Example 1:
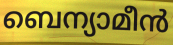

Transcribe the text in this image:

ബെന്യാമീൻ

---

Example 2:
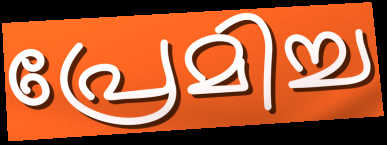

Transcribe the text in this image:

പ്രേമിച്ച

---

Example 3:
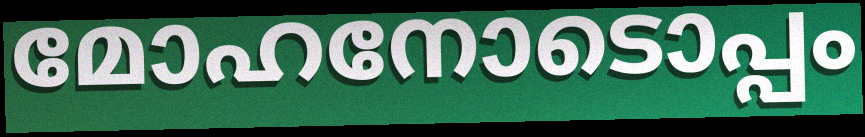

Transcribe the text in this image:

മോഹനോടൊപ്പം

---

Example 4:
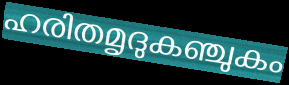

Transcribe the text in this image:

ഹരിതമൃദുകഞ്ചുകം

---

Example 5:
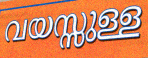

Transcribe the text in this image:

വയസ്സുള്ള